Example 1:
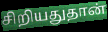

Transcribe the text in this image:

சிறியதுதான்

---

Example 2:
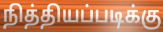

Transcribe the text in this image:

நித்தியப்படிக்கு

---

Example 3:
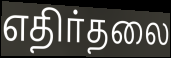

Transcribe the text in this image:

எதிர்தலை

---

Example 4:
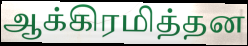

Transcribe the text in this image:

ஆக்கிரமித்தன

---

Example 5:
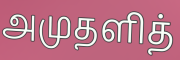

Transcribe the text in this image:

அமுதளித்